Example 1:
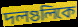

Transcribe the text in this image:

দলগুলিকে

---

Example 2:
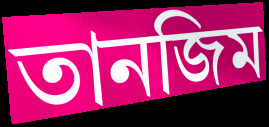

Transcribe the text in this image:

তানজিম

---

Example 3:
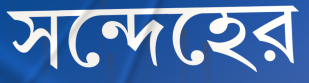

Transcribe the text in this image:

সন্দেহের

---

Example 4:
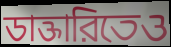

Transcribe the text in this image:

ডাক্তারিতেও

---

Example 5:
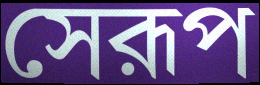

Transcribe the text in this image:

সেরূপ